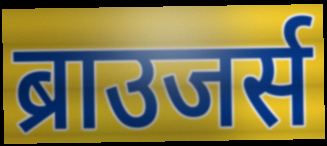
ब्राउजर्स